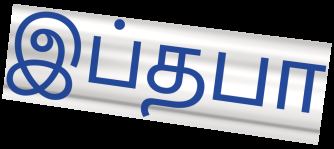
இப்தபா